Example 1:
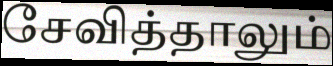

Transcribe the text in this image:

சேவித்தாலும்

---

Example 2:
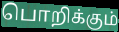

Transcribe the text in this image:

பொறிக்கும்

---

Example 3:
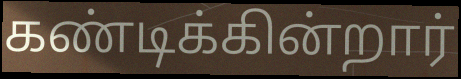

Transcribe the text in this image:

கண்டிக்கின்றார்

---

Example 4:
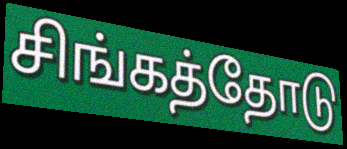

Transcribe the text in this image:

சிங்கத்தோடு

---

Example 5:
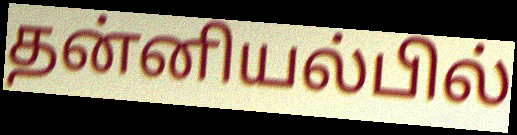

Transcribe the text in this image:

தன்னியல்பில்